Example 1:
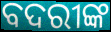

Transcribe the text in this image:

ବଦରୀଙ୍କ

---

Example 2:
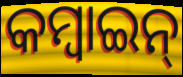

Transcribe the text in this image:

କମ୍ବାଇନ୍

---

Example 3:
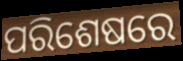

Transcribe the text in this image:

ପରିଶେଷରେ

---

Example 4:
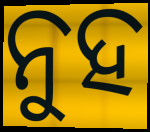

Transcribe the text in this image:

ନୁହ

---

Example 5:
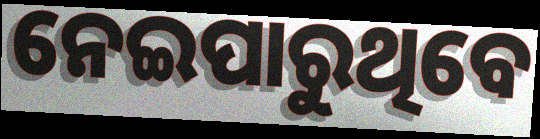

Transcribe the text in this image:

ନେଇପାରୁଥିବେ